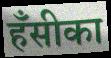
हँसीका